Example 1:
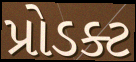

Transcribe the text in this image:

પ્રોડક્ટ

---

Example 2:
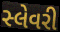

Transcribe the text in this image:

સ્લેવરી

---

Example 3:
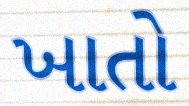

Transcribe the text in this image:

ખાતો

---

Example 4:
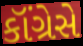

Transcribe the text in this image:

કૉંગ્રેસે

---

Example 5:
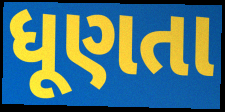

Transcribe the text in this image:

ધૂણતા